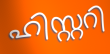
ഹിസ്റ്ററി